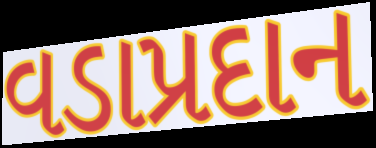
વડાપ્રદાન